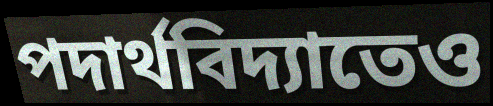
পদার্থবিদ্যাতেও